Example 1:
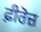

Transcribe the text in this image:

ਫ਼ੀਰੋਜ਼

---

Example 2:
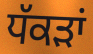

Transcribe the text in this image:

ਧੱਕੜਾਂ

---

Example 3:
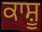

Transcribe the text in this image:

ਕਾਸ਼ੂ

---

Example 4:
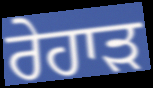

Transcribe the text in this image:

ਰੇਹਾੜ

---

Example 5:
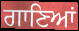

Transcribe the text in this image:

ਗਾਣਿਆਂ